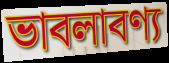
ভাবলাবণ্য